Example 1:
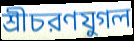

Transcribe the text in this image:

শ্রীচরণযুগল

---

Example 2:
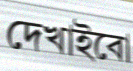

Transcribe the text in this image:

দেখাইবো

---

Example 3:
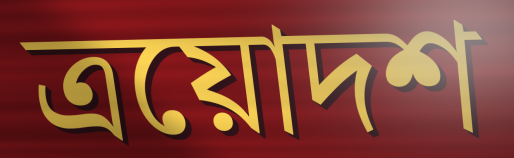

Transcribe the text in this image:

ত্রয়োদশ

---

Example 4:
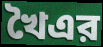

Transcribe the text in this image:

খৈএর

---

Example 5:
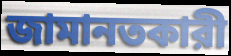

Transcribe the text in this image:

জামানতকারী